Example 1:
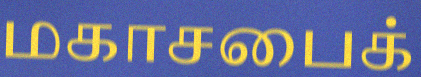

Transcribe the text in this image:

மகாசபைக்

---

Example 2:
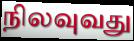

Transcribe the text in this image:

நிலவுவது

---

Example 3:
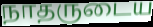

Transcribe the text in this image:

நாதருடைய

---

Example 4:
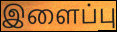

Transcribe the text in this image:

இளைப்பு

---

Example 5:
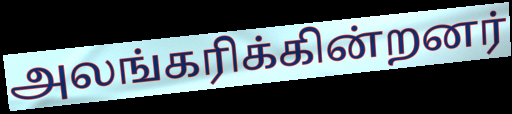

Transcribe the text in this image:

அலங்கரிக்கின்றனர்